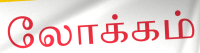
லோக்கம்